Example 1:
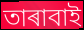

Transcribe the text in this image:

তাৰাবাই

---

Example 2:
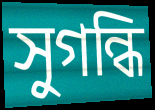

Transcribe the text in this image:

সুগন্ধি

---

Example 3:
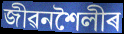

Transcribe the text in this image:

জীৱনশৈলীৰ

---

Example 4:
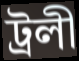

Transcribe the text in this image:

ট্ৰলী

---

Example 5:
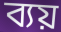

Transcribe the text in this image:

ব্যয়